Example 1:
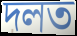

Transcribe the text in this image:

দলত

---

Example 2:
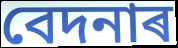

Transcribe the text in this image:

বেদনাৰ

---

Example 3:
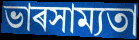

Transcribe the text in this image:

ভাৰসাম্যতা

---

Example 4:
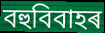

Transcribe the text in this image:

বহুবিবাহৰ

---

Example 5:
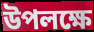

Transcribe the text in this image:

উপলক্ষে